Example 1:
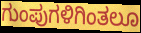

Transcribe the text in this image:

ಗುಂಪುಗಳಿಗಿಂತಲೂ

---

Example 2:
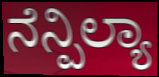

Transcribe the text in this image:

ನೆನ್ಪಿಲ್ಯಾ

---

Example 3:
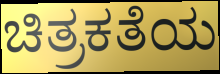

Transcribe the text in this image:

ಚಿತ್ರಕತೆಯ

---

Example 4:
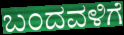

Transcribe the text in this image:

ಬಂದವಳಿಗೆ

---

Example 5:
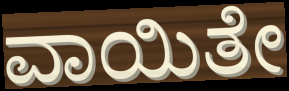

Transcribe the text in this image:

ವಾಯಿತೇ